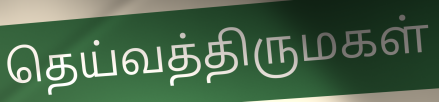
தெய்வத்திருமகள்